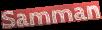
Samman